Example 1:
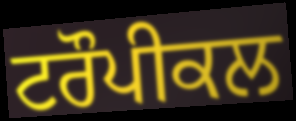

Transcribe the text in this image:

ਟਰੌਪੀਕਲ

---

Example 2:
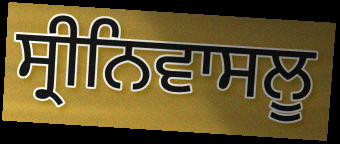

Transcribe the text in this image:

ਸ੍ਰੀਨਿਵਾਸਲੂ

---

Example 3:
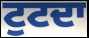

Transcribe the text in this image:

ਟੁਟਦਾ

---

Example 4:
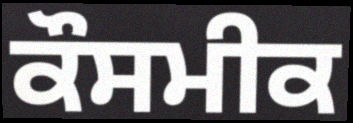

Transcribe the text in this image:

ਕੌਸਮੀਕ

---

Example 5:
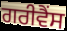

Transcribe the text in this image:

ਗਰੀਵੈਂਸ